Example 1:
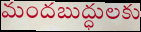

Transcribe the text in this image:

మందబుద్ధులకు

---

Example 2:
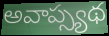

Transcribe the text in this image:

అవాప్స్యథ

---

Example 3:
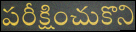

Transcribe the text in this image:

పరీక్షించుకొని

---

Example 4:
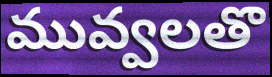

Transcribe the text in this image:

మువ్వలతొ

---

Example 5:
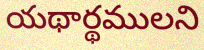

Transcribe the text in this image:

యథార్థములని